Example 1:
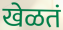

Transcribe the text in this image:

खेळतं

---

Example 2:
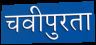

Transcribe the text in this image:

चवीपुरता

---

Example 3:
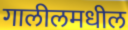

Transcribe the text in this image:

गालीलमधील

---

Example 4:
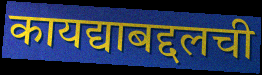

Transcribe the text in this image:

कायद्याबद्दलची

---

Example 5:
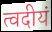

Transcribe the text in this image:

त्वदीयं